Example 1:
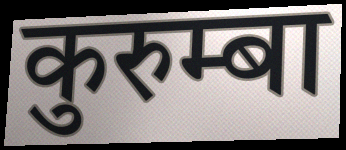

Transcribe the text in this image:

कुरुम्बा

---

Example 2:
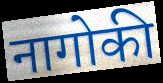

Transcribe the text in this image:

नागोकी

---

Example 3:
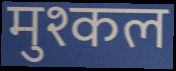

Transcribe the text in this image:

मुश्कल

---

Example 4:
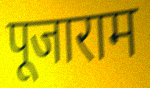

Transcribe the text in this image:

पूजाराम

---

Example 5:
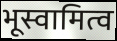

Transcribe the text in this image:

भूस्वामित्व